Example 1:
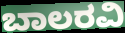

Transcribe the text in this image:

ಬಾಲರವಿ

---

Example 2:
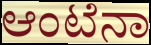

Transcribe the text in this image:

ಆಂಟೆನಾ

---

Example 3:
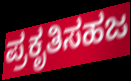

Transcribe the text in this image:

ಪ್ರಕೃತಿಸಹಜ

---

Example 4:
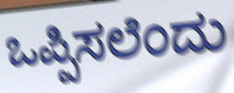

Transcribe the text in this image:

ಒಪ್ಪಿಸಲೆಂದು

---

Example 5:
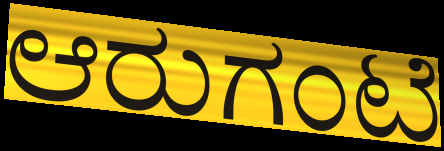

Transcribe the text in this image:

ಆರುಗಂಟೆ